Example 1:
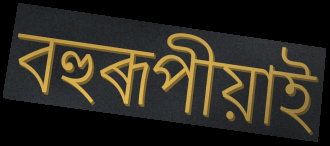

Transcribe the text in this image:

বহুৰূপীয়াই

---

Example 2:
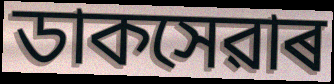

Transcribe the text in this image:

ডাকসেৱাৰ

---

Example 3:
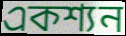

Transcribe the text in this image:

একশ্যন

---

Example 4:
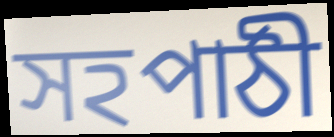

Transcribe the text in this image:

সহপাঠী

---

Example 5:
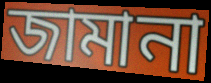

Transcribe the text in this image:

জামানা